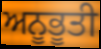
ਅਨੂਭੂਤੀ